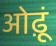
ओढ़ूं